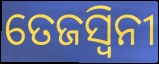
ତେଜସ୍ଵିନୀ